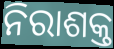
ନିରାଶକ୍ତ